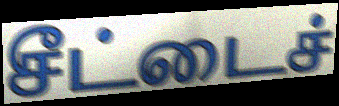
சீட்டைச்